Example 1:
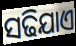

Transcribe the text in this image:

ସଢିଯାଏ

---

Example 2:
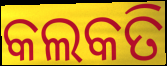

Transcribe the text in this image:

କଲକତି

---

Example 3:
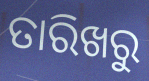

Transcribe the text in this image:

ତାରିଖରୁ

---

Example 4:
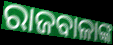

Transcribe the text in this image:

ରାଜବାଳାଙ୍କ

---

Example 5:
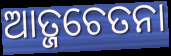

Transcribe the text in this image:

ଆତ୍ଜଚେତନା